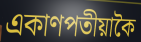
একাণপতীয়াকৈ